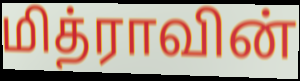
மித்ராவின்